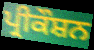
ਪ੍ਰੀਕੌਸ਼ਨ